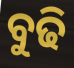
ବୁଢି